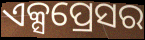
ଏକ୍ସପ୍ରେସର